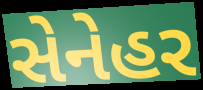
સેનેહર